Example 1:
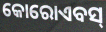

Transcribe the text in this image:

କୋରୋଏବସ୍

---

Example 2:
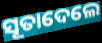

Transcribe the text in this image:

ସୂତାଦେଲେ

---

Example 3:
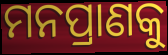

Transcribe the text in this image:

ମନପ୍ରାଣକୁ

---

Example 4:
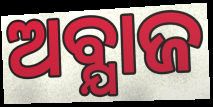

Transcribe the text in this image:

ଅବ୍ଯାଜ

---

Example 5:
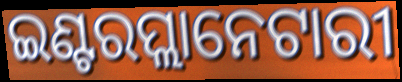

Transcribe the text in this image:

ଇଣ୍ଟରପ୍ଲାନେଟାରୀ